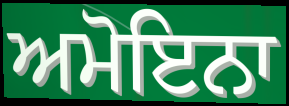
ਅਮੋਇਨਾ